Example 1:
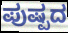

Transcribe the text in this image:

ಪುಷ್ಪದ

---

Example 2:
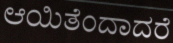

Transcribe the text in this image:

ಆಯಿತೆಂದಾದರೆ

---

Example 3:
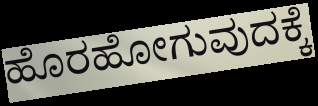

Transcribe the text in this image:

ಹೊರಹೋಗುವುದಕ್ಕೆ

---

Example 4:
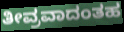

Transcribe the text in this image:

ತೀವ್ರವಾದಂತಹ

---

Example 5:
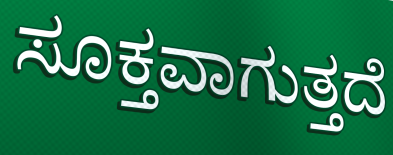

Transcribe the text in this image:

ಸೂಕ್ತವಾಗುತ್ತದೆ